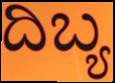
ದಿಬ್ಯ